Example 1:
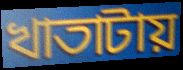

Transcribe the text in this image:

খাতাটায়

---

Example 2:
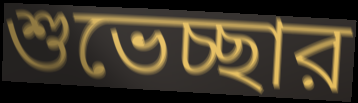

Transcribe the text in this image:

শুভেচ্ছার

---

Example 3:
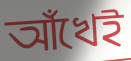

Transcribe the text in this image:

আঁখেই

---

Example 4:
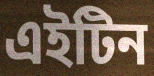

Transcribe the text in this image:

এইটিন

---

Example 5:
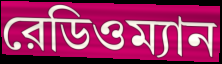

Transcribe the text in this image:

রেডিওম্যান